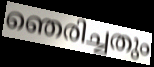
ഞെരിച്ചതും